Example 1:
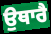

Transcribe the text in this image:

ਉਥਾਰੈ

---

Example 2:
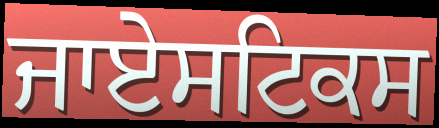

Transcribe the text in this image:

ਜਾਏਸਟਿਕਸ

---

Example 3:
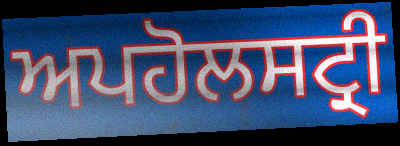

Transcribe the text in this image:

ਅਪਹੋਲਸਟ੍ਰੀ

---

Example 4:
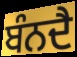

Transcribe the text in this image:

ਬੰਨਦੈ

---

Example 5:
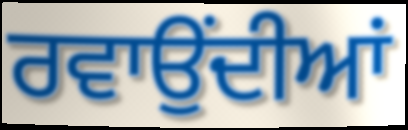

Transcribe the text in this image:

ਰਵਾਉਂਦੀਆਂ